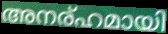
അനര്ഹമായി